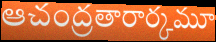
ఆచంద్రతారార్కమూ